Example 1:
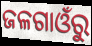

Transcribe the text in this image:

ଜଳଗାଓଁରୁ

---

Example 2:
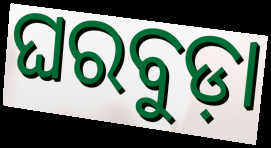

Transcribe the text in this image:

ଘରବୁଡ଼ା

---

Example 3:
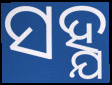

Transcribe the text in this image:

ସହ୍ଯ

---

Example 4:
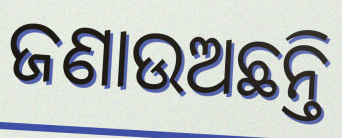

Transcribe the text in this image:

ଜଣାଉଅଛନ୍ତି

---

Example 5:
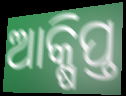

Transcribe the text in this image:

ଆକ୍ଷିପ୍ତ